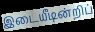
இடையீடின்றிப்